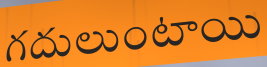
గదులుంటాయి